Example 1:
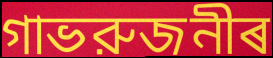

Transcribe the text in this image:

গাভৰুজনীৰ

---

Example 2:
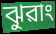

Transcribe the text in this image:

ঝুৱাং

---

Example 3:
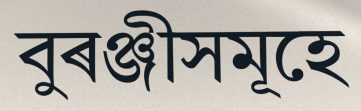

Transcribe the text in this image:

বুৰঞ্জীসমূহে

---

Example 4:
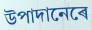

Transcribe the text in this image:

উপাদানেৰে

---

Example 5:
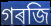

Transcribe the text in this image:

গৰজি